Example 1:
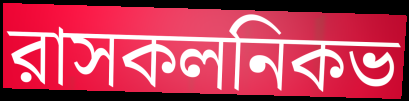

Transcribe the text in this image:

রাসকলনিকভ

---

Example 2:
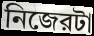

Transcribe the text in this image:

নিজেরটা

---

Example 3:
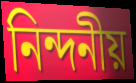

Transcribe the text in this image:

নিন্দনীয়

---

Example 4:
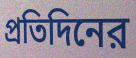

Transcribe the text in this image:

প্রতিদিনের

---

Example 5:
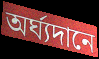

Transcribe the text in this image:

অর্ঘ্যদানে